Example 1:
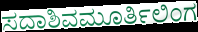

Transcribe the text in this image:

ಸದಾಶಿವಮೂರ್ತಿಲಿಂಗ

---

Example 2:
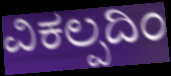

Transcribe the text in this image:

ವಿಕಲ್ಪದಿಂ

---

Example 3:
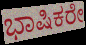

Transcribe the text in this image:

ಭಾಷಿಕರೇ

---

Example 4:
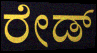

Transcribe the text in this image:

ರೇಡ್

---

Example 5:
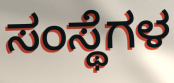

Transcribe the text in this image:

ಸಂಸ್ಥೆಗಳ